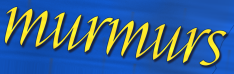
murmurs